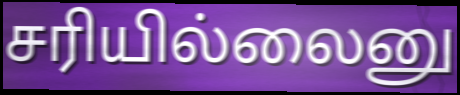
சரியில்லைனு